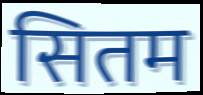
सितम